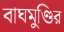
বাঘমুণ্ডির